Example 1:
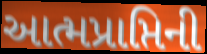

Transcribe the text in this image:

આત્મપ્રાપ્તિની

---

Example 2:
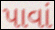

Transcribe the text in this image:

પાવાં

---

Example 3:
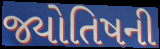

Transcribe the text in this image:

જ્યોતિષની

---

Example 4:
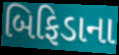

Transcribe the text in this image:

બિફિડાના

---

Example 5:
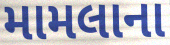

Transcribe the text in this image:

મામલાના